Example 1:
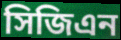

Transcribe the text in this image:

সিজিএন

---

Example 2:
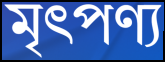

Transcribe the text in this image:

মৃৎপণ্য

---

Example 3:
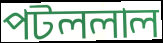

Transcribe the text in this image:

পটললাল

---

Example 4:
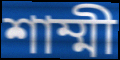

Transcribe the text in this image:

শাম্মী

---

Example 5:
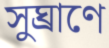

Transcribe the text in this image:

সুঘ্রাণে